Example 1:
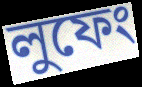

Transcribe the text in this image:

লুফেং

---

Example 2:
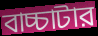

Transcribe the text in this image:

বাচ্চাটার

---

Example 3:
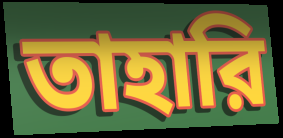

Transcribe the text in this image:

তাহারি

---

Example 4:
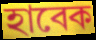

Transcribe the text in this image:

হাবেক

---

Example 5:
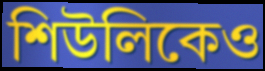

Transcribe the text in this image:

শিউলিকেও